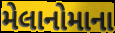
મેલાનોમાના